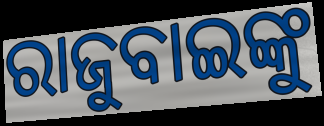
ରାଜୁବାଇଙ୍କୁ